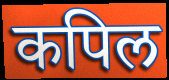
कपिल